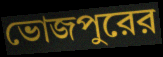
ভোজপুরের